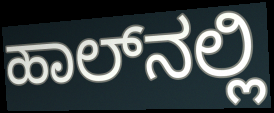
ಹಾಲ್‌ನಲ್ಲಿ